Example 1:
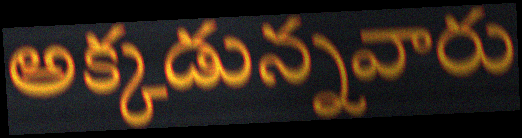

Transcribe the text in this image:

అక్కడున్నవారు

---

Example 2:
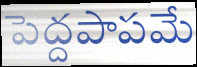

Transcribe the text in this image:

పెద్దపాపమే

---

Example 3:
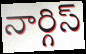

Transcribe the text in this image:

నార్గిస్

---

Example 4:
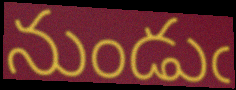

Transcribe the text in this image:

నుండుఁ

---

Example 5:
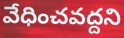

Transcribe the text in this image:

వేధించవద్దని